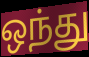
ஒந்து